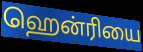
ஹென்ரியை